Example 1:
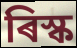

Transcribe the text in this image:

ৰিস্ক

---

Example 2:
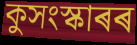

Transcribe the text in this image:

কুসংস্কাৰৰ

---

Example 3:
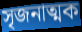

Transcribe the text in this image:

সৃজনাত্মক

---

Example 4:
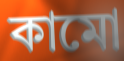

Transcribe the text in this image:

কামো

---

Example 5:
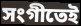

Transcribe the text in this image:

সংগীতেই